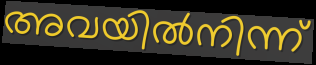
അവയിൽനിന്ന്